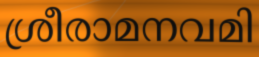
ശ്രീരാമനവമി